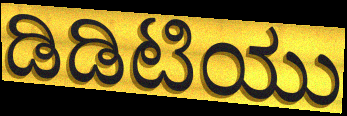
ಡಿಡಿಟಿಯು